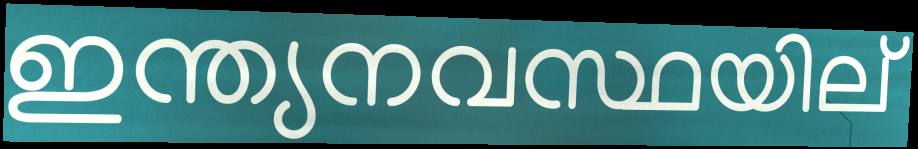
ഇന്ത്യനവസ്ഥയില്